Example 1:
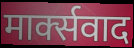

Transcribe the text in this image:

मार्क्‍सवाद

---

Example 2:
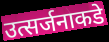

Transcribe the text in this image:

उत्सर्जनाकडे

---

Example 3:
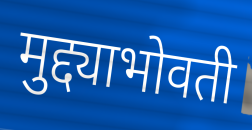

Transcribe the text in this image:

मुद्द्याभोवती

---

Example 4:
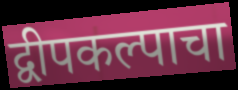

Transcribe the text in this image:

द्वीपकल्पाचा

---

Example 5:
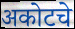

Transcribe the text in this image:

अकोटचे